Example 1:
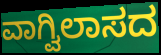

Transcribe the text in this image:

ವಾಗ್ವಿಲಾಸದ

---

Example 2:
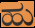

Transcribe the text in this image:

ಹು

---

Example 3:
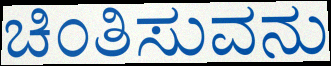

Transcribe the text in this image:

ಚಿಂತಿಸುವನು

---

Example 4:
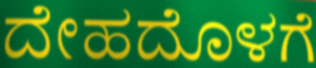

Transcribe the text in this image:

ದೇಹದೊಳಗೆ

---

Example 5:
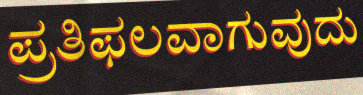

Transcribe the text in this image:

ಪ್ರತಿಫಲವಾಗುವುದು